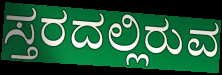
ಸ್ತರದಲ್ಲಿರುವ